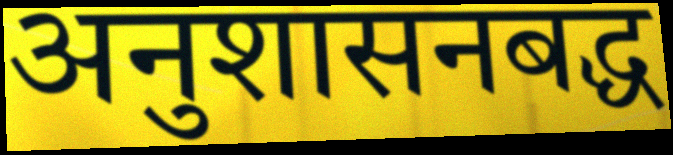
अनुशासनबद्ध